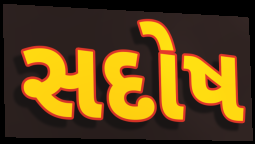
સદોષ